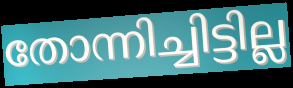
തോന്നിച്ചിട്ടില്ല